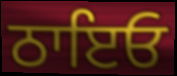
ਠਾਇਓ